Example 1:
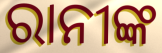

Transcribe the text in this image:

ରାନୀଙ୍କ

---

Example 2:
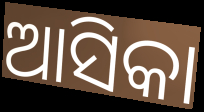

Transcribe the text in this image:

ଆସିକା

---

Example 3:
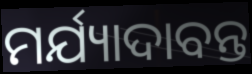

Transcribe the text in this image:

ମର୍ଯ୍ୟାଦାବନ୍ତ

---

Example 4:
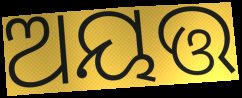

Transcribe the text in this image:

ଅୟତ୍ତ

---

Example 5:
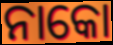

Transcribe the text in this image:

ନାକୋ